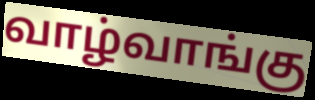
வாழ்வாங்கு